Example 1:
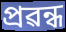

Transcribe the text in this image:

প্ৰৱন্ধ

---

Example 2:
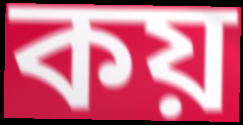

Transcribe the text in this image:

কয়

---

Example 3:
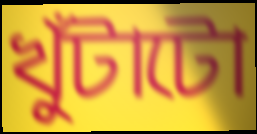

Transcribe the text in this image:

খুঁটাটো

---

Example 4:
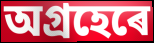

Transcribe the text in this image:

অগ্ৰহেৰে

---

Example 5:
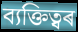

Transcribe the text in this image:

ব্যক্তিত্বৰ